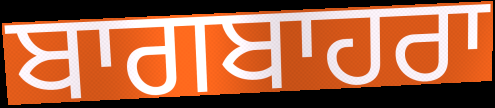
ਬਾਗਬਾਹਰਾ